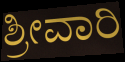
ಶ್ರೀವಾರಿ